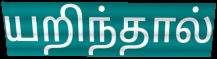
யறிந்தால்